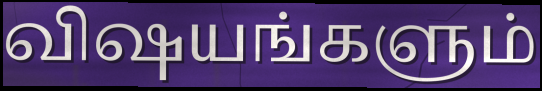
விஷயங்களும்